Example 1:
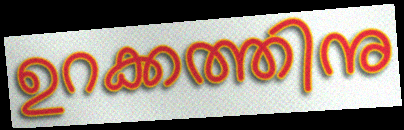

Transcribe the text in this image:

ഉറക്കത്തിനു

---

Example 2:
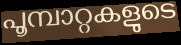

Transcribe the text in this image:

പൂമ്പാറ്റകളുടെ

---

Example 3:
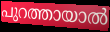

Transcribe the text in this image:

പുറത്തായാൽ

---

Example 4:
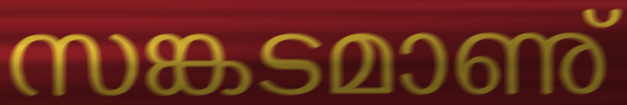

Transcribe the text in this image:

സങ്കടമാണു്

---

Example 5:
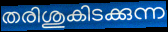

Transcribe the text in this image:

തരിശുകിടക്കുന്ന